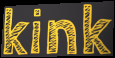
kink